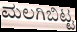
ಮಲಗಿಬಿಟ್ಟ